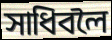
সাধিবলৈ